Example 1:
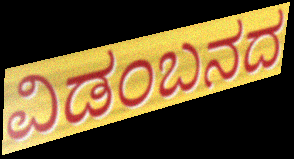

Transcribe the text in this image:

ವಿಡಂಬನದ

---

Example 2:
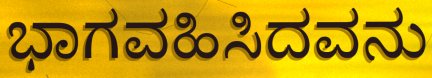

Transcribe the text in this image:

ಭಾಗವಹಿಸಿದವನು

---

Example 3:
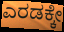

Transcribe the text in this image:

ಎರಡಕ್ಕೇ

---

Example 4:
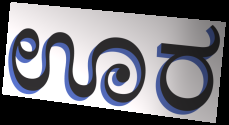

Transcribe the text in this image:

ಊರ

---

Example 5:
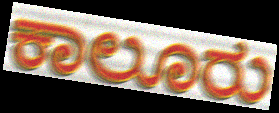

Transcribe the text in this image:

ಕಾಲೂರು